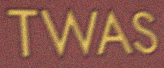
TWAS